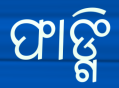
ଫାଙ୍ଗି